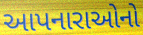
આપનારાઓનો